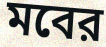
মবের